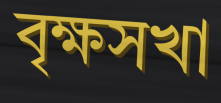
বৃক্ষসখা